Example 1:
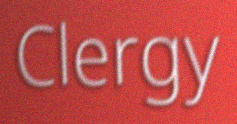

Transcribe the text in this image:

Clergy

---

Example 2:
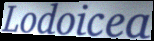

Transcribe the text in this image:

Lodoicea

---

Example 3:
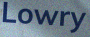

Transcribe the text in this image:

Lowry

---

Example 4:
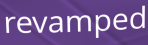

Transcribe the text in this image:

revamped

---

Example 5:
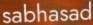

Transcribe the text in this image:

sabhasad